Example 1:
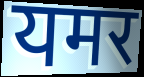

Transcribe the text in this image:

यमर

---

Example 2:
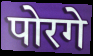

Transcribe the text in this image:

पोरगे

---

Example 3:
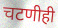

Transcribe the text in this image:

चटणीही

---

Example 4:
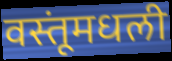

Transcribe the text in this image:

वस्तूंमधली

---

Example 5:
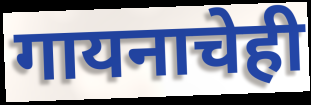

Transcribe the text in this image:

गायनाचेही